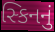
સ્કિનનું